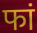
फां